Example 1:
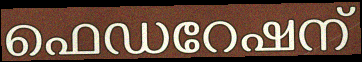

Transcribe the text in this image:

ഫെഡറേഷന്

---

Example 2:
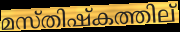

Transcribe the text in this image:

മസ്തിഷ്കത്തില്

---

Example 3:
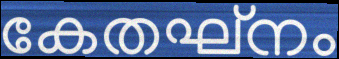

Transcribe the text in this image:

കേതഘ്നം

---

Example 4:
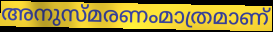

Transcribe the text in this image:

അനുസ്മരണംമാത്രമാണ്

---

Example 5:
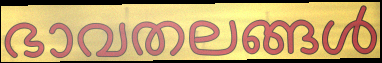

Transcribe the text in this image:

ഭാവതലങ്ങൾ